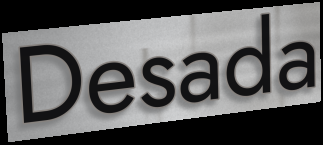
Desada